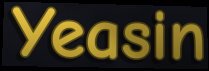
Yeasin